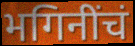
भगिनींचं